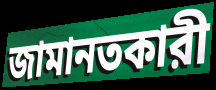
জামানতকারী